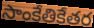
సాంకేతికేతర